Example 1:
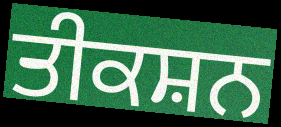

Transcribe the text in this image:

ਤੀਕਸ਼ਨ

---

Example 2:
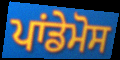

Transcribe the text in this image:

ਪਾਂਡੇਮੋਸ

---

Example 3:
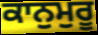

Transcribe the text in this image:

ਕਾਨੁਮੁਰੂ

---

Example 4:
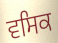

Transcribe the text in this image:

ਵਸਿਕ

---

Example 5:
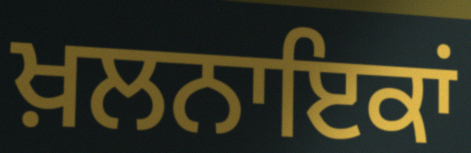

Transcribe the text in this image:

ਖ਼ਲਨਾਇਕਾਂ